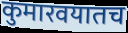
कुमारवयातच